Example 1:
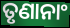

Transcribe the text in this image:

ତୃଣାନାଂ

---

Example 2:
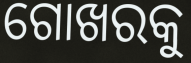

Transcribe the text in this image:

ଗୋଖରକୁ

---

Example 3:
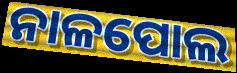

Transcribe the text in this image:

ନାଳପୋଲ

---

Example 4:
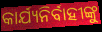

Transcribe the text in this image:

କାର୍ଯ୍ୟନିର୍ବାହୀଙ୍କୁ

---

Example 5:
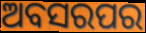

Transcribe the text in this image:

ଅବସରପର